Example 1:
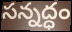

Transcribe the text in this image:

సన్నద్ధం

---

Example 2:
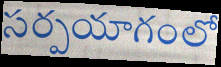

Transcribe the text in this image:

సర్పయాగంలో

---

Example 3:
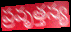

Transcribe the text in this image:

ప్రవృత్తస్య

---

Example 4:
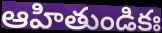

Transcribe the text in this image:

ఆహితుండికః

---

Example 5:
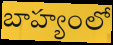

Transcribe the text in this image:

బాహ్యంలో